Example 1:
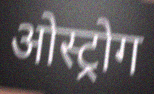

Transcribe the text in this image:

ओस्ट्रोग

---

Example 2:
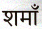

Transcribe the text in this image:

शमाँ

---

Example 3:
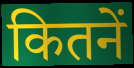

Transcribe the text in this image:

कितनें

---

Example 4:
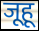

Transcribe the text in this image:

जूहू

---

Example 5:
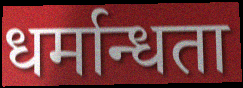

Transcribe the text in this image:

धर्मान्धता